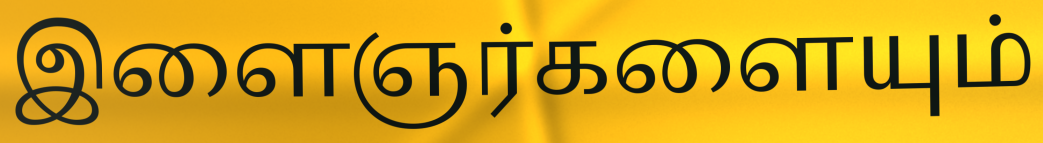
இளைஞர்களையும்